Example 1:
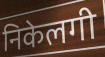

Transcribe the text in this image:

निकेलगी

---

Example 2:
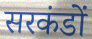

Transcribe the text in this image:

सरकंडों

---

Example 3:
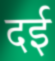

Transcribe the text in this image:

दई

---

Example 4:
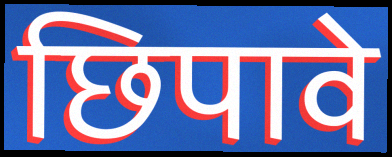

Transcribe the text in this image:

छिपावे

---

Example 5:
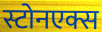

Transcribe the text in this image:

स्टोनएक्स